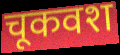
चूकवश